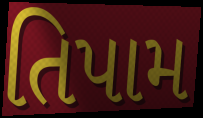
તિપામ